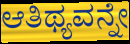
ಆತಿಥ್ಯವನ್ನೇ